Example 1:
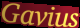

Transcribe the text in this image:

Gavius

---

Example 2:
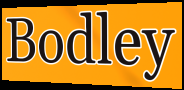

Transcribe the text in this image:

Bodley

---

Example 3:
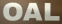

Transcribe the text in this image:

OAL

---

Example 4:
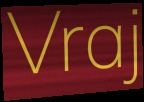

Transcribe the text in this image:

Vraj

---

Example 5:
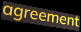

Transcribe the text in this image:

agreement